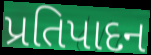
પ્રતિપાદન